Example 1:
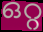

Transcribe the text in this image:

ഒറ്റ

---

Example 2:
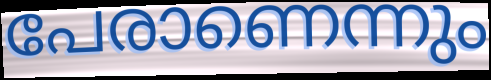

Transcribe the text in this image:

പേരാണെന്നും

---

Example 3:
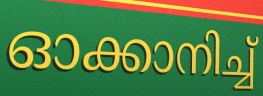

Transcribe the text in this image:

ഓക്കാനിച്ച്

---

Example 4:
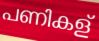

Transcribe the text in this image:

പണികള്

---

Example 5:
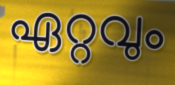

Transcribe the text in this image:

ഏറ്റവും